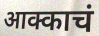
आक्काचं